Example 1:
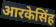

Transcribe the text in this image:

आरकेसिंह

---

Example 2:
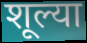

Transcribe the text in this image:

शूल्या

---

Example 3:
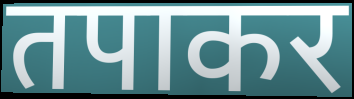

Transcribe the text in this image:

तपाकर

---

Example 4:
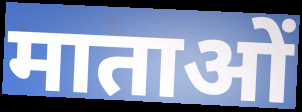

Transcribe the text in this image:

माताओं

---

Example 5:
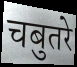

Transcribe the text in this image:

चबुतरे